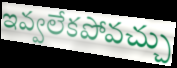
ఇవ్వలేకపోవచ్చు